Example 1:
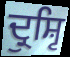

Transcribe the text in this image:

ਦ੍ਰੁਸ਼੍ਟਿ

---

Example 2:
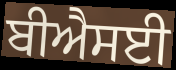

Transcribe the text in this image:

ਬੀਐਸਈ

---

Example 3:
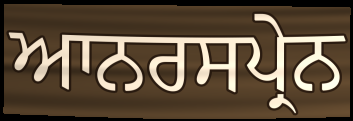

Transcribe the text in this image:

ਆਨਰਸਪ੍ਰੇਨ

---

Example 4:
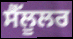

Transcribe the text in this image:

ਸੈੱਲੂਲਰ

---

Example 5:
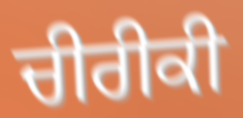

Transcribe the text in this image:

ਚੀਰੀਕੀ